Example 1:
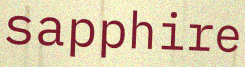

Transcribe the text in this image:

sapphire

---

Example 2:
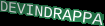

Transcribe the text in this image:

DEVINDRAPPA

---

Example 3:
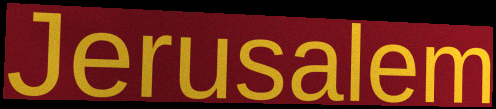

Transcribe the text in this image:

Jerusalem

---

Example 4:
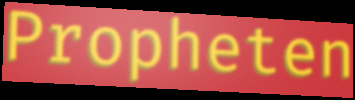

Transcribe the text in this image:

Propheten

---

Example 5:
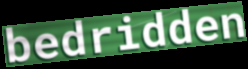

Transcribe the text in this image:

bedridden